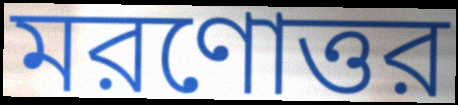
মরণোত্তর